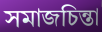
সমাজচিন্তা